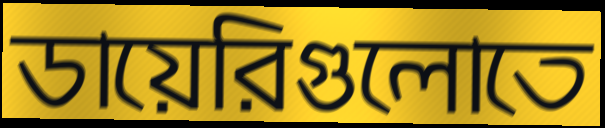
ডায়েরিগুলোতে